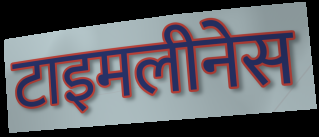
टाइमलीनेस